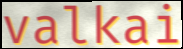
valkai